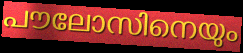
പൗലോസിനെയും